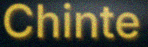
Chinte